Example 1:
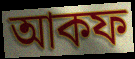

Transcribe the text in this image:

আকফ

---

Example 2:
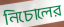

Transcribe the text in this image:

নিচোলের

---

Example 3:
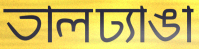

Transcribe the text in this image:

তালঢ্যাঙা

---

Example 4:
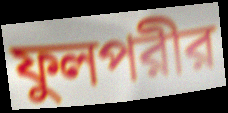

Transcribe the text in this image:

ফুলপরীর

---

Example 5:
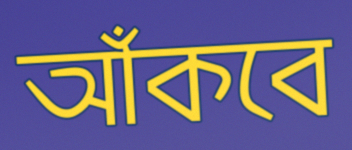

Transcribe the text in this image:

আঁকবে